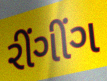
રીંગીંગ